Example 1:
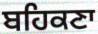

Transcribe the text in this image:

ਬਹਿਕਣਾ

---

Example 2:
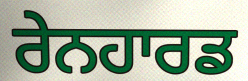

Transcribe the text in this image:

ਰੇਨਹਾਰਡ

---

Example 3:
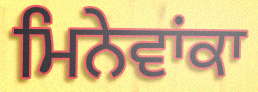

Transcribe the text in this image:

ਮਿਨੇਵਾਂਕਾ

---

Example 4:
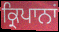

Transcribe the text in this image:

ਕ੍ਰਿਪਾਨਾਂ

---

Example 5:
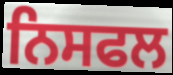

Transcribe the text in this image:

ਨਿਸਫਲ